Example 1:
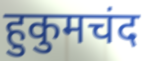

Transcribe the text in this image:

हुकुमचंद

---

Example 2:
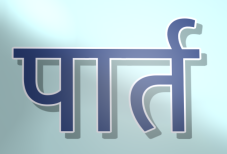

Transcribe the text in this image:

पार्त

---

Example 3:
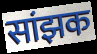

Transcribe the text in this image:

सांझक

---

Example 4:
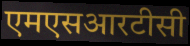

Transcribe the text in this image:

एमएसआरटीसी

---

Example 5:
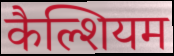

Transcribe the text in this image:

कैल्शियम